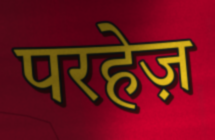
परहेज़